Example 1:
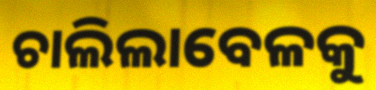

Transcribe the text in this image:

ଚାଲିଲାବେଳକୁ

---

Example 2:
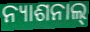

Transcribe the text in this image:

ନ୍ୟାଶନାଲ୍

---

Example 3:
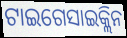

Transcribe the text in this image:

ଟାଇଗେସାଇକ୍ଲିନ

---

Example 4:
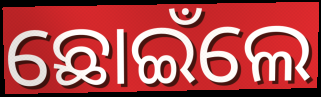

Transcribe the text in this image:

ଛୋଇଁଲେ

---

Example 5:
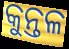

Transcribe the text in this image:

କୁନ୍ତଳ